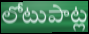
లోటుపాట్ల